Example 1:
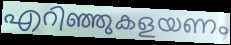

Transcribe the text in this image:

എറിഞ്ഞുകളയണം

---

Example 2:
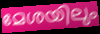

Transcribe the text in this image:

മേശയിലും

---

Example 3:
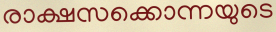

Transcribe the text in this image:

രാക്ഷസക്കൊന്നയുടെ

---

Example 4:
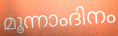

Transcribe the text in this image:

മൂന്നാംദിനം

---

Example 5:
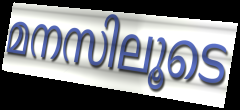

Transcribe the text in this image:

മനസിലൂടെ